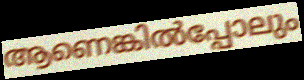
ആണെങ്കിൽപ്പോലും